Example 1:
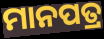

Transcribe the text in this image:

ମାନପତ୍ର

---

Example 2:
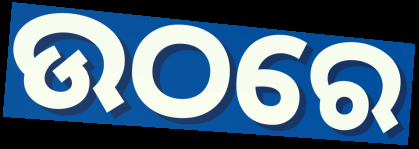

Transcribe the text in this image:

ଉଠରେ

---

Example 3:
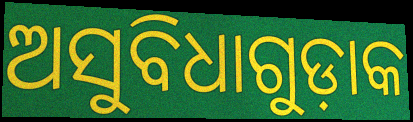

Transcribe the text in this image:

ଅସୁବିଧାଗୁଡ଼ାକ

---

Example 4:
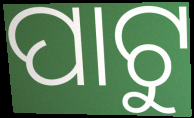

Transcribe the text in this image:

ପାଟୁ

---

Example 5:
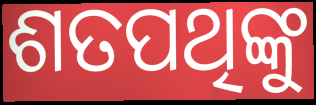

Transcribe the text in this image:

ଶତପଥିଙ୍କୁ